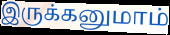
இருக்கனுமாம்